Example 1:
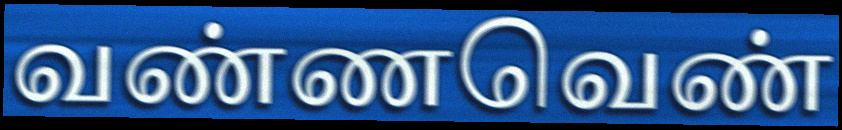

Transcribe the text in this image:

வண்ணவெண்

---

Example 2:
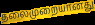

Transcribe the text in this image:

தலைமுறையானது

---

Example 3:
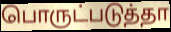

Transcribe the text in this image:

பொருட்படுத்தா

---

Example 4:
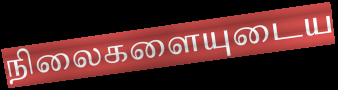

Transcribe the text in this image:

நிலைகளையுடைய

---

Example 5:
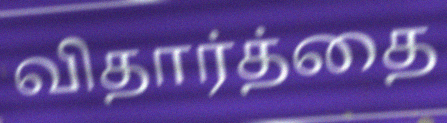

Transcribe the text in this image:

விதார்த்தை